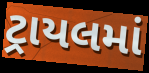
ટ્રાયલમાં